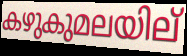
കഴുകുമലയില്